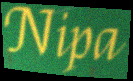
Nipa